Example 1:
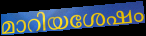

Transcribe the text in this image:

മാറിയശേഷം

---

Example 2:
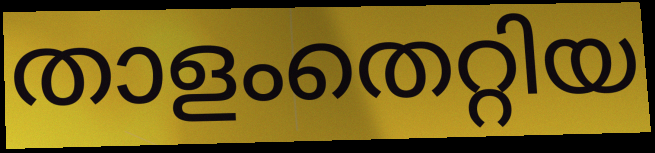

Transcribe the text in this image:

താളംതെറ്റിയ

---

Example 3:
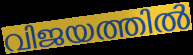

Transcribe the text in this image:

വിജയത്തിൽ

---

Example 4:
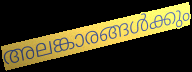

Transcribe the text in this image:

അലങ്കാരങ്ങൾക്കും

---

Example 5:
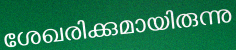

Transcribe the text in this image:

ശേഖരിക്കുമായിരുന്നു